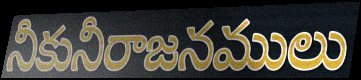
నీకునీరాజనములు